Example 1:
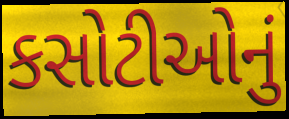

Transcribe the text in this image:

કસોટીઓનું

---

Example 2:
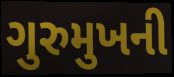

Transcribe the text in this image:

ગુરુમુખની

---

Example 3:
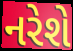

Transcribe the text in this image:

નરેશે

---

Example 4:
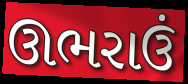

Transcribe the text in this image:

ઊભરાઉં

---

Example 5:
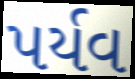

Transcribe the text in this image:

પર્યવ